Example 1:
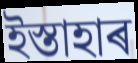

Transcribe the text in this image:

ইস্তাহাৰ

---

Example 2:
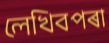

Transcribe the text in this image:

লেখিবপৰা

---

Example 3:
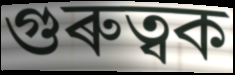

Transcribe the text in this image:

গুৰুত্বক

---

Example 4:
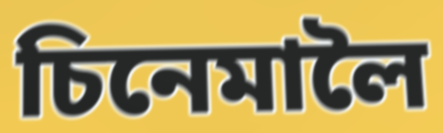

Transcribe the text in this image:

চিনেমালৈ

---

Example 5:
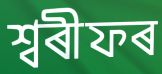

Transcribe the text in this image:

শ্বৰীফৰ